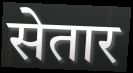
सेतार